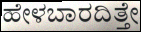
ಹೇಳಬಾರದಿತ್ತೇ